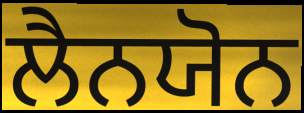
ਲੈਨਯੋਨ